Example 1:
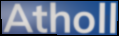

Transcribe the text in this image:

Atholl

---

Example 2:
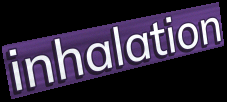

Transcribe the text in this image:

inhalation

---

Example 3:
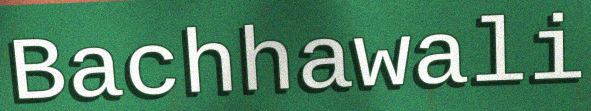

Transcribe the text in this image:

Bachhawali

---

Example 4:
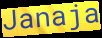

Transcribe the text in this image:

Janaja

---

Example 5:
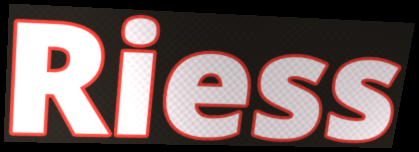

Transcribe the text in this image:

Riess